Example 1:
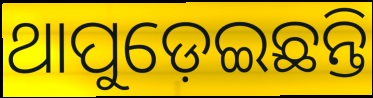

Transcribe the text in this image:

ଥାପୁଡ଼େଇଛନ୍ତି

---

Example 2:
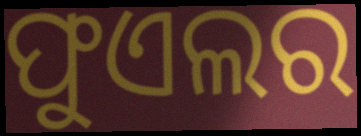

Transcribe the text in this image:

ଫୁଏଲର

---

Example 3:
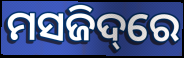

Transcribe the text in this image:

ମସଜିଦ୍‌ରେ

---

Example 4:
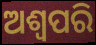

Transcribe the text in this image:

ଅଶ୍ୱପରି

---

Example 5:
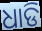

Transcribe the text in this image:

ଧାଡି